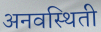
अनवस्थिती